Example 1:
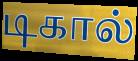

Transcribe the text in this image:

டிகால்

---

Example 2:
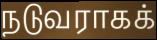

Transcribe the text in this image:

நடுவராகக்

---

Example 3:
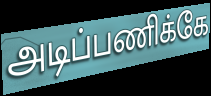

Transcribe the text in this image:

அடிப்பணிக்கே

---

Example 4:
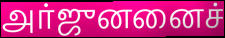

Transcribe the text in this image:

அர்ஜுனனைச்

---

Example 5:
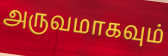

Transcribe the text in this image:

அருவமாகவும்